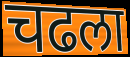
चढला